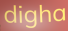
digha